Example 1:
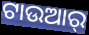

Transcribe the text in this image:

ଟାଉଆର୍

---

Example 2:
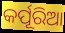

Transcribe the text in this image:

କର୍ପୂରିଆ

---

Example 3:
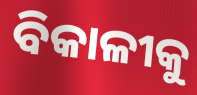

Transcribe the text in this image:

ବିକାଳୀକୁ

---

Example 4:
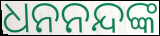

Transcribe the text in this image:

ଧନନନ୍ଦଙ୍କ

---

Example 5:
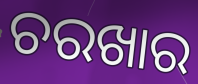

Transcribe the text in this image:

ଚରଖାର